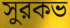
সুরকভ